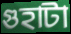
গুহাটা